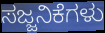
ಸಜ್ಜನಿಕೆಗಳು